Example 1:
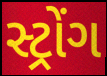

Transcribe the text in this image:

સ્ટ્રોંગ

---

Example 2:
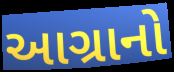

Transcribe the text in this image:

આગ્રાનો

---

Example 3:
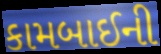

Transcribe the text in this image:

કામબાઈની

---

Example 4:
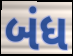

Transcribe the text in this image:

બંધ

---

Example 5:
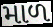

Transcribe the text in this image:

માળ